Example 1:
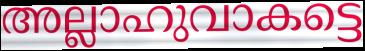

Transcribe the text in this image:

അല്ലാഹുവാകട്ടെ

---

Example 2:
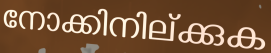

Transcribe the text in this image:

നോക്കിനില്ക്കുക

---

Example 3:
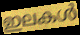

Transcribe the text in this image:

ഇലകൾ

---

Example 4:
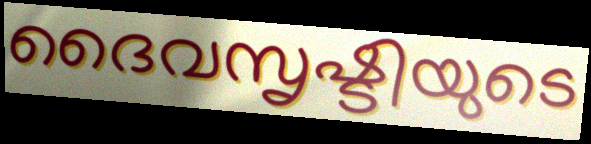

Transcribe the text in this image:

ദൈവസൃഷ്ടിയുടെ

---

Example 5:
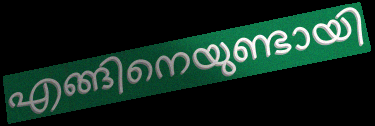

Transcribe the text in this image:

എങ്ങിനെയുണ്ടായി